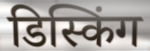
डिस्किंग